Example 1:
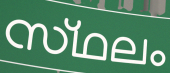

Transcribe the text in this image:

സ്‌ഥലം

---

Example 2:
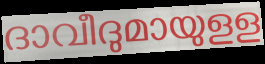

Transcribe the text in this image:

ദാവീദുമായുളള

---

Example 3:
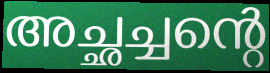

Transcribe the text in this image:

അച്ഛച്ചന്റെ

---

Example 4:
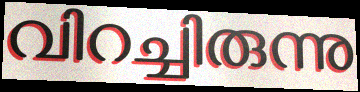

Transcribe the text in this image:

വിറച്ചിരുന്നു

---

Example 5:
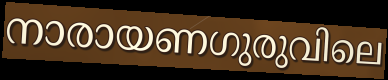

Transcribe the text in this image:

നാരായണഗുരുവിലെ